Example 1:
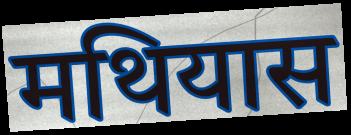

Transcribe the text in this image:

मथियास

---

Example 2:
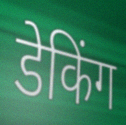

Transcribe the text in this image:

डेकिंग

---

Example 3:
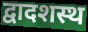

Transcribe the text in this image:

द्वादशस्थ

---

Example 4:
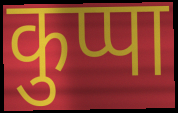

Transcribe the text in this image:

कुप्पा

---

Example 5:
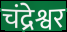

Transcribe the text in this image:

चंद्रेश्वर